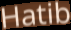
Hatib